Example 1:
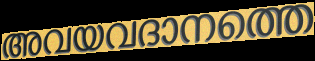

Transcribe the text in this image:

അവയവദാനത്തെ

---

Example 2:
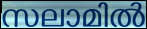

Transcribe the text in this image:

സലാമിൽ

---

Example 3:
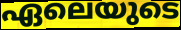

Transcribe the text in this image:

ഏലെയുടെ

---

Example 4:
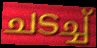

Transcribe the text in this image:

ചടച്ച്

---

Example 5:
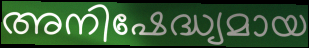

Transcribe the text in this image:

അനിഷേദ്ധ്യമായ